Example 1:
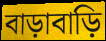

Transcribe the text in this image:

বাড়াবাড়ি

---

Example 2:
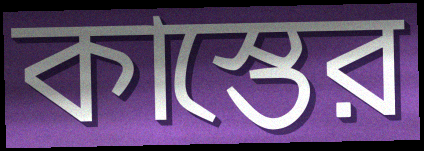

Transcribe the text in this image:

কাস্তের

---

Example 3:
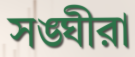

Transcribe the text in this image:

সঙ্ঘীরা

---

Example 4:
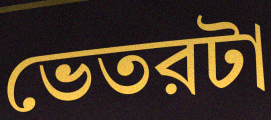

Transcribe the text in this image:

ভেতরটা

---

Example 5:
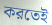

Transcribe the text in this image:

করতেই